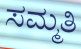
ಸಮ್ಮತಿ